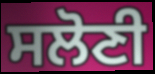
ਸਲੋਣੀ